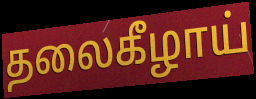
தலைகீழாய்